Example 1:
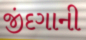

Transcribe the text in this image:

જીંદગાની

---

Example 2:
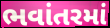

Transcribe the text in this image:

ભવાંતરમાં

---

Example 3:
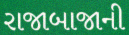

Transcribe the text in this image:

રાજાબાજાની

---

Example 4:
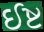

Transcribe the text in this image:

ઈષ્ટ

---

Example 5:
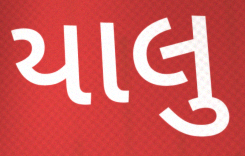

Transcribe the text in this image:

યાલુ